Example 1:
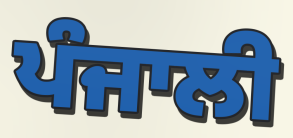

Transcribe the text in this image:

ਪੰਜਾਲੀ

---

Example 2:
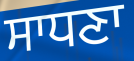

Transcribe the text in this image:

ਸਾਧਣਾ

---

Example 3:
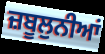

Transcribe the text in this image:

ਜ਼ਬੂਲੁਨੀਆਂ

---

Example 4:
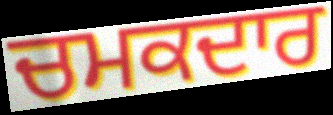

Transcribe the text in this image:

ਚਮਕਦਾਰ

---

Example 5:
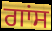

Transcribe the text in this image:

ਗਾਂਸ